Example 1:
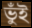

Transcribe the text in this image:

ভুঁই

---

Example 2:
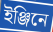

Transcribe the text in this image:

ইঞ্জিনে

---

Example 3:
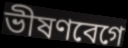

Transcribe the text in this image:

ভীষণবেগে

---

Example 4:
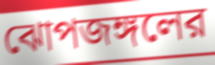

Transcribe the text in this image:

ঝোপজঙ্গলের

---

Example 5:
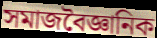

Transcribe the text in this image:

সমাজবৈজ্ঞানিক